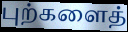
புற்களைத்